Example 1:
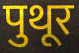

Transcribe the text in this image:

पुथूर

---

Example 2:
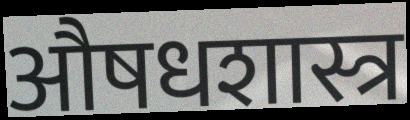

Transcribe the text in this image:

औषधशास्त्र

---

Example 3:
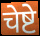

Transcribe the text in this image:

चेष्टे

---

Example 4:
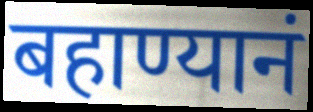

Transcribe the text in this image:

बहाण्यानं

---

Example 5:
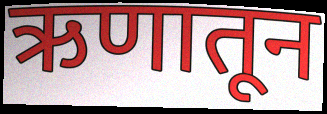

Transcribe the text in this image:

ऋणातून